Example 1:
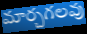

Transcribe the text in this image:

మార్చగలవు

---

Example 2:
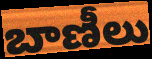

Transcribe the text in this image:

బాణీలు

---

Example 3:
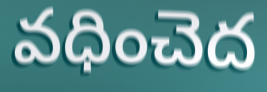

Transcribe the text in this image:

వధించెద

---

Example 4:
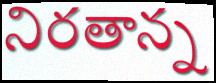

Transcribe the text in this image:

నిరతాన్న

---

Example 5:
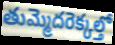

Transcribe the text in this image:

తుమ్మెదరెక్కల్తో